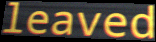
leaved